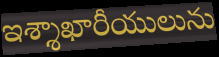
ఇశ్శాఖారీయులును